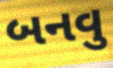
બનવુ